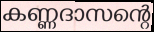
കണ്ണദാസന്റെ